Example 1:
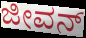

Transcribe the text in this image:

ಜೀವನ್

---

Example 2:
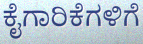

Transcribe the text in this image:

ಕೈಗಾರಿಕೆಗಳಿಗೆ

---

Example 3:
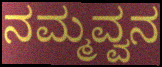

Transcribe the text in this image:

ನಮ್ಮವ್ವನ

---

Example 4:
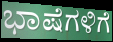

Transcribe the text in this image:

ಭಾಷೆಗಳಿಗೆ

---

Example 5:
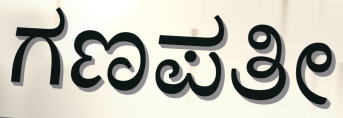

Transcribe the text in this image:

ಗಣಪತೀ